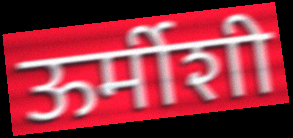
ऊर्मीशी